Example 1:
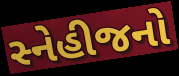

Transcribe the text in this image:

સ્નેહીજનો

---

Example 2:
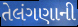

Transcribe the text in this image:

તેલંગણાની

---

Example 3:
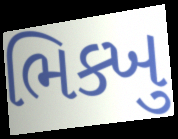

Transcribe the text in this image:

ભિક્ખુ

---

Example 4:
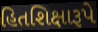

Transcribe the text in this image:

હિતશિક્ષારૂપે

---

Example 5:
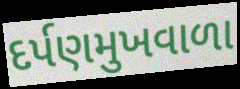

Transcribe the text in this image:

દર્પણમુખવાળા